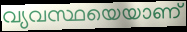
വ്യവസ്ഥയെയാണ്